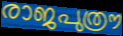
രാജപുത്രൗ